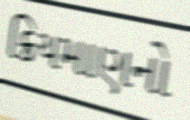
ક્રિયમાણનો